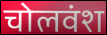
चोलवंश